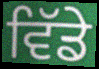
ਵਿੱਡੇ